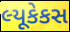
લ્યૂકેકસ